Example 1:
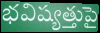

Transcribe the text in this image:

భవిష్యత్తుపై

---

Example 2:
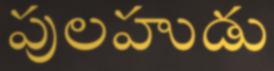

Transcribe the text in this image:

పులహుడు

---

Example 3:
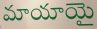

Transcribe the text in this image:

మాయాయై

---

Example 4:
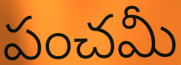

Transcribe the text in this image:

పంచమీ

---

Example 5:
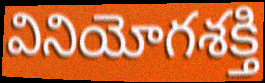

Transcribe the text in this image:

వినియోగశక్తి